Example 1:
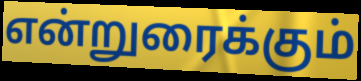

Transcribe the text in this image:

என்றுரைக்கும்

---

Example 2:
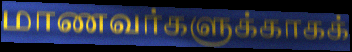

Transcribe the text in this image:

மாணவர்களுக்காகக்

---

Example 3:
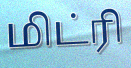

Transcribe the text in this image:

மிட்ரி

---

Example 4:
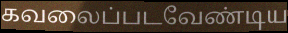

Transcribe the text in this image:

கவலைப்படவேண்டிய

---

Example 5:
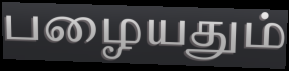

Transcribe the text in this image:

பழையதும்